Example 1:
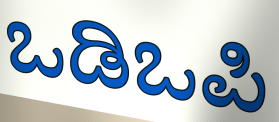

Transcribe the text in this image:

ಒಡಿಒಪಿ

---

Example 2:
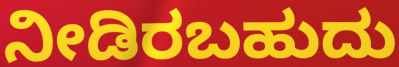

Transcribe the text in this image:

ನೀಡಿರಬಹುದು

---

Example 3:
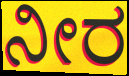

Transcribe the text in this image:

ನೀರ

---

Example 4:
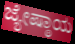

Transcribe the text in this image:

ಜ್ಯೇಷ್ಠಾಯ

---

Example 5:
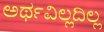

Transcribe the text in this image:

ಅರ್ಥವಿಲ್ಲದಿಲ್ಲ